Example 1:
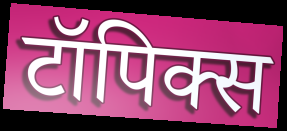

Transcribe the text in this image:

टॉपिक्स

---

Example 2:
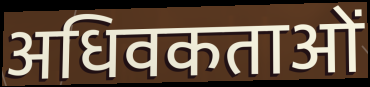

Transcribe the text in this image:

अधिवकताओं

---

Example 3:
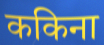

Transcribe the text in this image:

ककिना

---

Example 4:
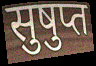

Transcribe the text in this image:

सुषुप्त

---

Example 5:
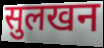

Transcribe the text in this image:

सुलखन